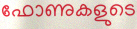
ഫോണുകളുടെ